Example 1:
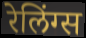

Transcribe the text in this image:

रेलिंग्स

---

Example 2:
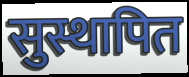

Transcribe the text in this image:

सुस्थापित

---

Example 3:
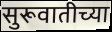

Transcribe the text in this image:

सुरूवातीच्या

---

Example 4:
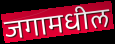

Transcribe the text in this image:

जगामधील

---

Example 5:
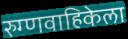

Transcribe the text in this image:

रुग्णवाहिकेला